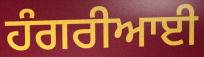
ਹੰਗਰੀਆਈ